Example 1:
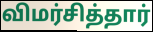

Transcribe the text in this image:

விமர்சித்தார்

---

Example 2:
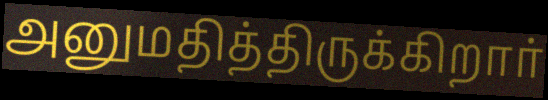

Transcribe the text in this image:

அனுமதித்திருக்கிறார்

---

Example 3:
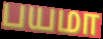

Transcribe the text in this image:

பயமா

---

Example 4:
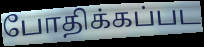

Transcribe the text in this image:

போதிக்கப்பட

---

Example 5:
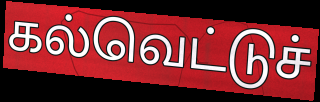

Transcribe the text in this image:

கல்வெட்டுச்